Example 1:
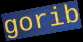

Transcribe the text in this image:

gorib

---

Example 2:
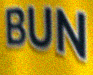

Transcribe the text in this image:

BUN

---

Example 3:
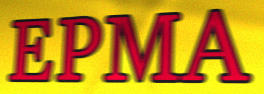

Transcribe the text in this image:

EPMA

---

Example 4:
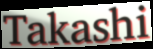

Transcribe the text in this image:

Takashi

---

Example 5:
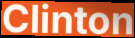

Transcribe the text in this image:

Clinton